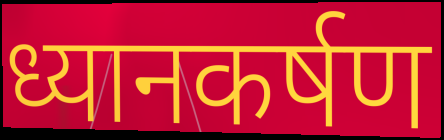
ध्यानकर्षण